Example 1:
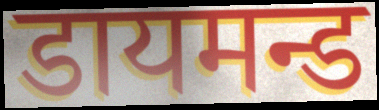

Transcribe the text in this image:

डायमन्ड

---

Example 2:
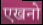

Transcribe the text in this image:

एखनो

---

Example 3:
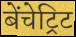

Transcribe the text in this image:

बेंचेट्रिट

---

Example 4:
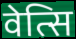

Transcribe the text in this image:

वेत्सि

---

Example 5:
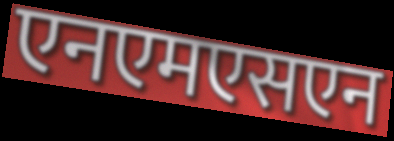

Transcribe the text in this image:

एनएमएसएन